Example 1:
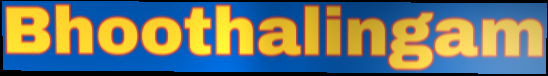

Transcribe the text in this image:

Bhoothalingam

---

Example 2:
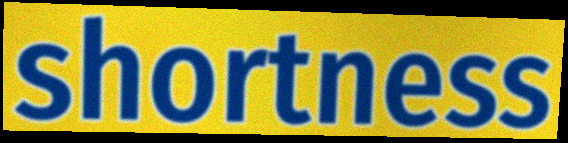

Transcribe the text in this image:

shortness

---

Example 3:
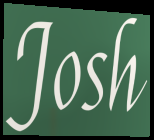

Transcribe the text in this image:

Josh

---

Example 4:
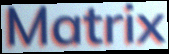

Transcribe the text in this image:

Matrix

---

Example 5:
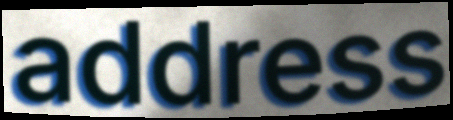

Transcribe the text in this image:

address